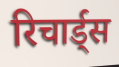
रिचार्ड्स